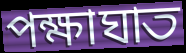
পক্ষাঘাত